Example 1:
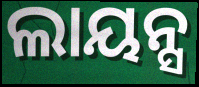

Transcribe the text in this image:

ଲାୟନ୍ସ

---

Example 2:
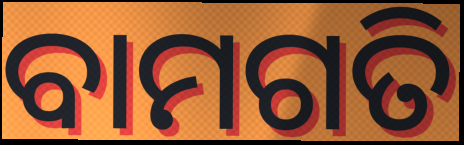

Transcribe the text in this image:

ବାମଗତି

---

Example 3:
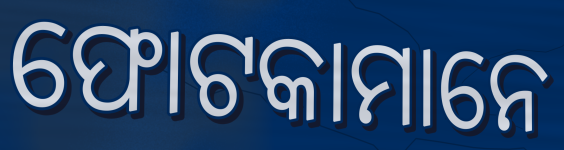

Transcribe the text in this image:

ଫୋଟକାମାନେ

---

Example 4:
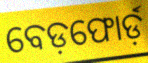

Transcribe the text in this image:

ବେଡ଼ଫୋର୍ଡ଼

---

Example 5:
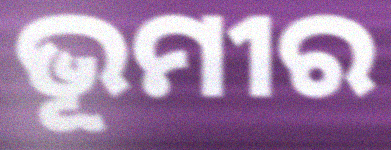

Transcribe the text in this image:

ଭୂମୀର